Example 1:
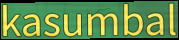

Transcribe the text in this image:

kasumbal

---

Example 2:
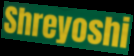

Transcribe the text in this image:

Shreyoshi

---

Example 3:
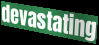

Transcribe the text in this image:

devastating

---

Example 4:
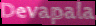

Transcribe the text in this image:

Devapala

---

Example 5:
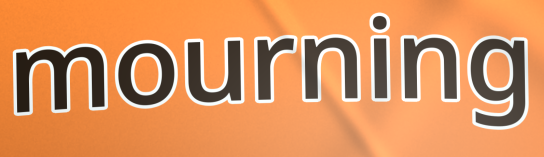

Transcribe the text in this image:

mourning